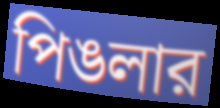
পিঙলার